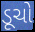
ડૂચો